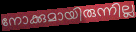
നോക്കുമായിരുന്നില്ല